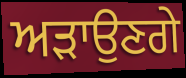
ਅੜਾਉਣਗੇ